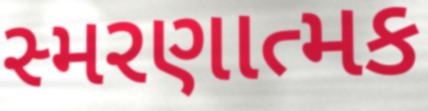
સ્મરણાત્મક